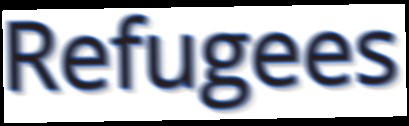
Refugees